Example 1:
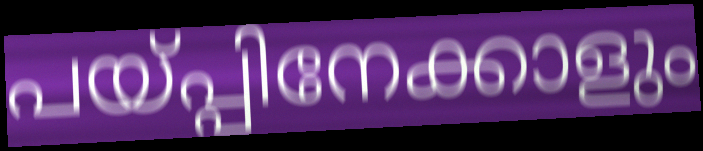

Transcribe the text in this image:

പയ്പ്പിനേക്കാളും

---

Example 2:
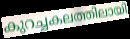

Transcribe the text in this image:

കുറച്ചകലത്തിലായി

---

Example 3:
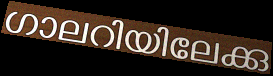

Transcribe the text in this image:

ഗാലറിയിലേക്കു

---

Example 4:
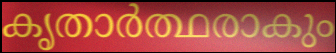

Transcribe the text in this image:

കൃതാർത്ഥരാകും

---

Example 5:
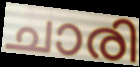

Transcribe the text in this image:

ചാരി